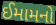
ઈમામનો